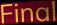
Final